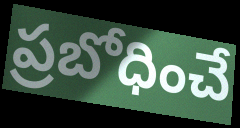
ప్రబోధించే